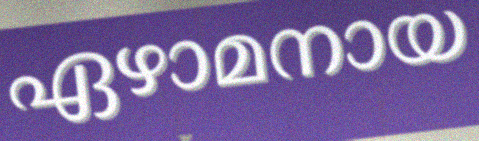
ഏഴാമനായ